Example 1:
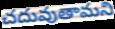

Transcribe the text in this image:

చదువుతామని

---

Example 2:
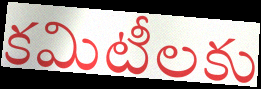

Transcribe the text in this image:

కమిటీలకు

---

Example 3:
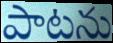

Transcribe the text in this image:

పాటను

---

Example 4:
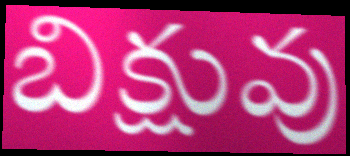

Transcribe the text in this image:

బిక్షువు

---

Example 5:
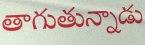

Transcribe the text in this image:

తాగుతున్నాడు